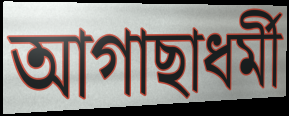
আগাছাধর্মী